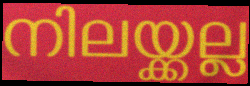
നിലയ്ക്കല്ല